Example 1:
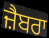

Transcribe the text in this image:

ਜ਼ੈਬਰਾ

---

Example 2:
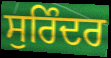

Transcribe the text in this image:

ਸੁਰਿੰਦਰ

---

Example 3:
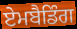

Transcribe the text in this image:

ਏਮਬੈਡਿੰਗ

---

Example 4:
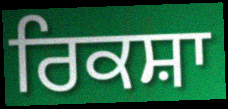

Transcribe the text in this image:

ਰਿਕਸ਼ਾ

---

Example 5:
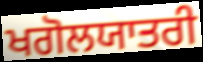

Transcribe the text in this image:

ਖਗੋਲਯਾਤਰੀ